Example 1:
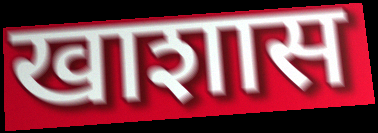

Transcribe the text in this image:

खाशास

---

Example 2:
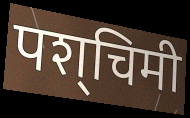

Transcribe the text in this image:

पश्चिमी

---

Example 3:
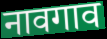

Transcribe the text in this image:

नावगाव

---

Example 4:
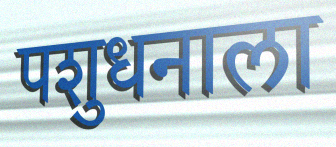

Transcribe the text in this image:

पशुधनाला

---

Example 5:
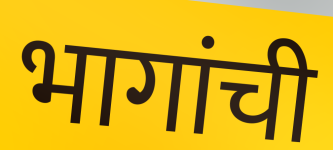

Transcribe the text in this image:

भागांची